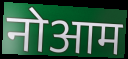
नोआम